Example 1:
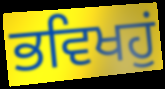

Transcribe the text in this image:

ਭਵਿਖਹੁਂ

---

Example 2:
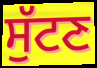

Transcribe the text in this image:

ਸੁੱਟਣ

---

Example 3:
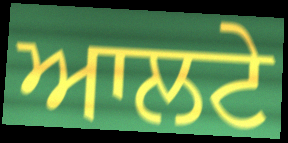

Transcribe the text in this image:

ਆਲਟੇ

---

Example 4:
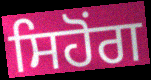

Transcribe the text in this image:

ਸਿਹੋਂਗ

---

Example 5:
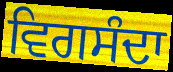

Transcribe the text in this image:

ਵਿਗਸੰਦਾ